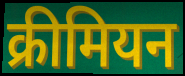
क्रीमियन